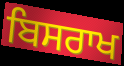
ਬਿਸਰਾਖ